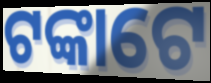
ଟଙ୍କାଟେ